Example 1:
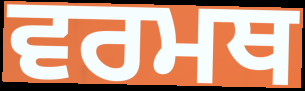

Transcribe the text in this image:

ਵਰਮਥ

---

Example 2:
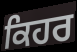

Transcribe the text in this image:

ਕਿਹਰ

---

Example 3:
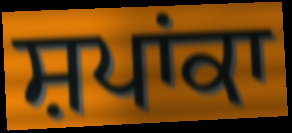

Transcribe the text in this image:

ਸ਼ਪਾਂਕਾ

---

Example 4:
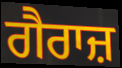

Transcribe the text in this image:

ਗੈਰਾਜ਼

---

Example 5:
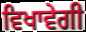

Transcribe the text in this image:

ਵਿਖਾਵੇਗੀ